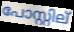
പോസ്റ്റില്